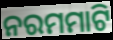
ନରମମାଟି